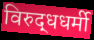
विरुद्धधर्मी